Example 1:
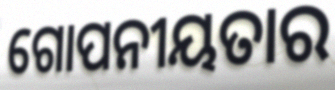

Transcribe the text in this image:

ଗୋପନୀୟତାର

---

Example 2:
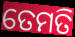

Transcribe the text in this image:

ତେମତି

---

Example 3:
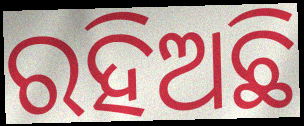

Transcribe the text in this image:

ରହିଅଛି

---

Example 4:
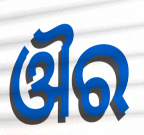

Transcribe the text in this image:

ଔର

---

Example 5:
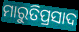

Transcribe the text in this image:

ମାରୁତିପ୍ରସାଦ